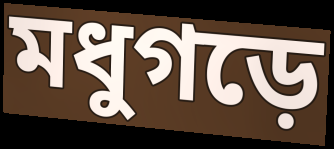
মধুগড়ে